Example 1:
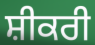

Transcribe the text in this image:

ਸ਼ੀਕਰੀ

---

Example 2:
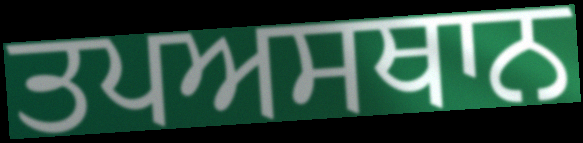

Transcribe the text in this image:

ਤਪਅਸਥਾਨ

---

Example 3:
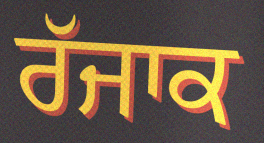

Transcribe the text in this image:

ਰੱਜਾਕ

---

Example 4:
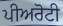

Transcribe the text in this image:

ਪੀਅਰੋਟੀ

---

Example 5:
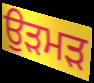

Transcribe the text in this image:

ਉੜਮੜ